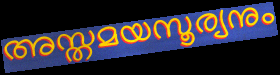
അസ്തമയസൂര്യനും